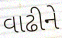
વાઢીને